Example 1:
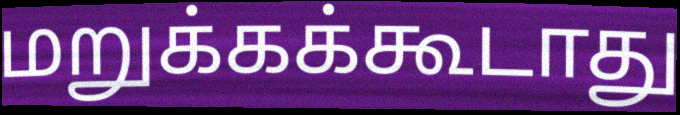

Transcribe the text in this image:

மறுக்கக்கூடாது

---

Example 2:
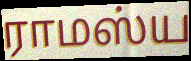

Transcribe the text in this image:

ராமஸ்ய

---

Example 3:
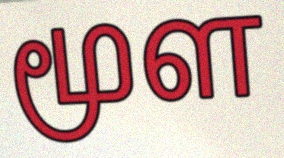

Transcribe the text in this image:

மூள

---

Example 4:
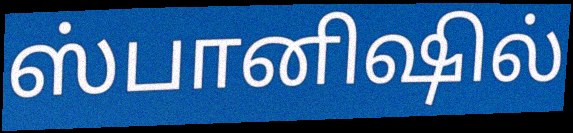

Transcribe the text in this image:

ஸ்பானிஷில்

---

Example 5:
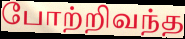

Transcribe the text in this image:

போற்றிவந்த